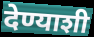
देण्याशी